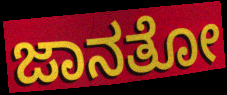
ಜಾನತೋ